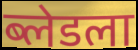
ब्लेडला